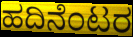
ಹದಿನೆಂಟರ